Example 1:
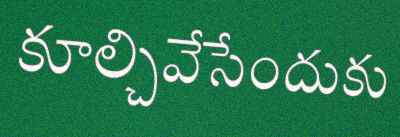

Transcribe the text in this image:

కూల్చివేసేందుకు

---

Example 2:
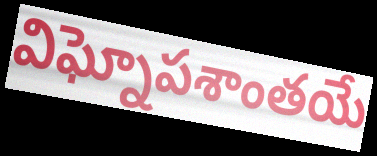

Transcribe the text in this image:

విఘ్నోపశాంతయే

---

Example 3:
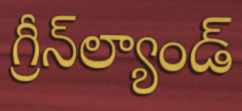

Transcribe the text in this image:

గ్రీన్‌ల్యాండ్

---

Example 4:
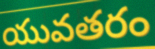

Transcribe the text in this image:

యువతరం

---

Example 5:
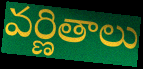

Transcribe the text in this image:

వర్ణితాలు